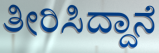
ತೀರಿಸಿದ್ದಾನೆ